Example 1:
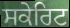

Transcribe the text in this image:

ਸਕੇਰਿਟ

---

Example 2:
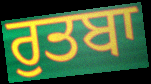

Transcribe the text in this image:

ਰੁਤਬਾ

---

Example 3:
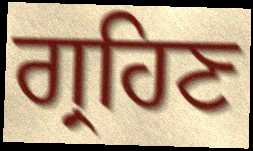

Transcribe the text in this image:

ਗ੍ਰਹਿਣ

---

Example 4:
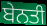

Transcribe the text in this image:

ਬੇਨਤੀ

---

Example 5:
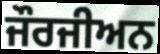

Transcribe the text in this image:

ਜੌਰਜੀਅਨ